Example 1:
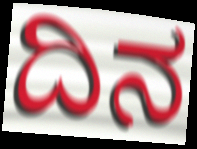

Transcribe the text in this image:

ದಿನ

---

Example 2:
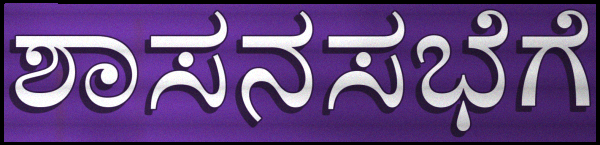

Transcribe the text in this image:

ಶಾಸನಸಭೆಗೆ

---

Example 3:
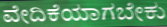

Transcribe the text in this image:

ವೇದಿಕೆಯಾಗಬೇಕು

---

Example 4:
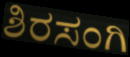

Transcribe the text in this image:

ಶಿರಸಂಗಿ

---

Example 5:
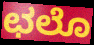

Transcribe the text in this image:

ಛಲೊ